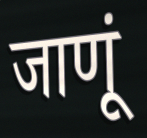
जाणूं